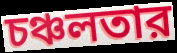
চঞ্চলতার